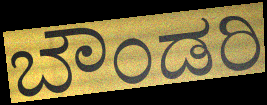
ಬೌಂಡರಿ